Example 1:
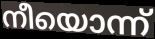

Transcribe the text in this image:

നീയൊന്ന്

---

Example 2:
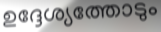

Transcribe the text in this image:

ഉദ്ദേശ്യത്തോടും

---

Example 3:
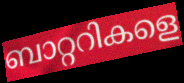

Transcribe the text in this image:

ബാറ്ററികളെ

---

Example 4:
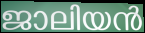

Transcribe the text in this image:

ജാലിയൻ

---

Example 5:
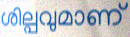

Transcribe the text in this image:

ശില്പവുമാണ്